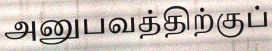
அனுபவத்திற்குப்